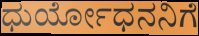
ಧುರ್ಯೋಧನನಿಗೆ